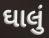
ઘાલું